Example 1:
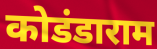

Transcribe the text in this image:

कोडंडाराम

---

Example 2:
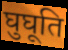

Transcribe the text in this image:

घुघूति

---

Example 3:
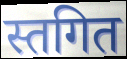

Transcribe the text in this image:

स्तगित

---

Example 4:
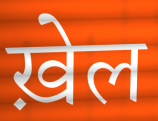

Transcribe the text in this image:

ख़ेल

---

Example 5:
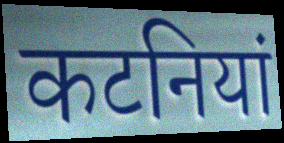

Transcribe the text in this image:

कटनियां